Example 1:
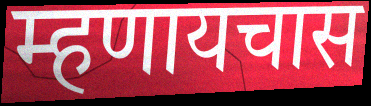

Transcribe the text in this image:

म्हणायचास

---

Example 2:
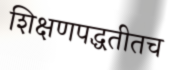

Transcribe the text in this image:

शिक्षणपद्धतीतच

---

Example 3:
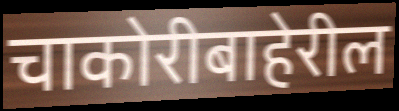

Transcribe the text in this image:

चाकोरीबाहेरील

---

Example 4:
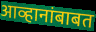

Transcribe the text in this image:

आव्हानांबाबत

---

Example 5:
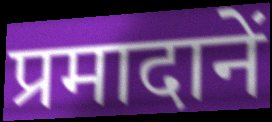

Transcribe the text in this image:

प्रमादानें